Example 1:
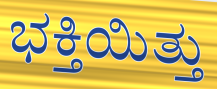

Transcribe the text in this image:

ಭಕ್ತಿಯಿತ್ತು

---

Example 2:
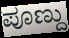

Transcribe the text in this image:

ಪೂಣ್ದು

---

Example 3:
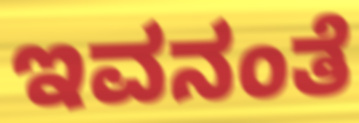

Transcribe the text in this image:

ಇವನಂತೆ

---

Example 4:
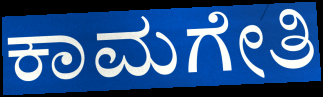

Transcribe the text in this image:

ಕಾಮಗೇತಿ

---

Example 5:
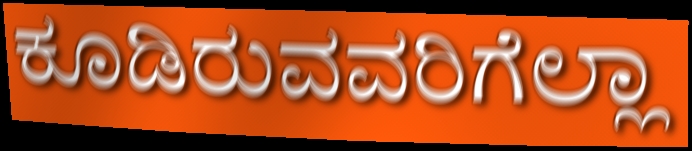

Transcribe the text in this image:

ಕೂಡಿರುವವರಿಗೆಲ್ಲಾ